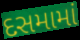
દસમામાં